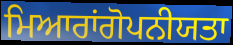
ਮਿਆਰਾਂਗੋਪਨੀਯਤਾ